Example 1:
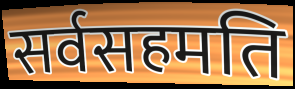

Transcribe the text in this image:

सर्वसहमति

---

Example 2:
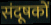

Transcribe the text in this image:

संदूषकों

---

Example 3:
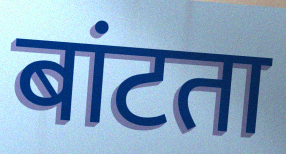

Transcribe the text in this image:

बांटता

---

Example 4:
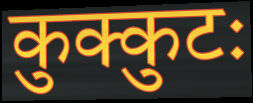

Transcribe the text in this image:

कुक्कुटः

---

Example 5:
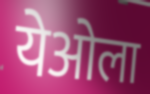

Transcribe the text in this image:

येओला